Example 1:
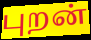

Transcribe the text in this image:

புறன்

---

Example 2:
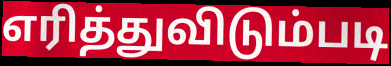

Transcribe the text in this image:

எரித்துவிடும்படி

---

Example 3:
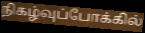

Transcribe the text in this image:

நிகழ்வுப்போக்கில்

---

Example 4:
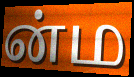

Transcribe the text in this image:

ன்ம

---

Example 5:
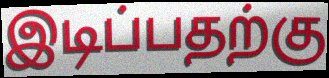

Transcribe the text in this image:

இடிப்பதற்கு